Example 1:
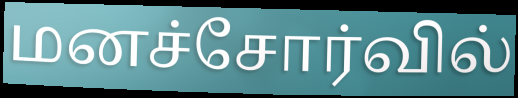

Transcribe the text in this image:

மனச்சோர்வில்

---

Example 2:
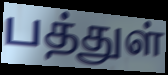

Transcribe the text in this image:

பத்துள்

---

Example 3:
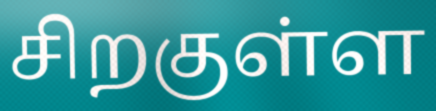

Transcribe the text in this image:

சிறகுள்ள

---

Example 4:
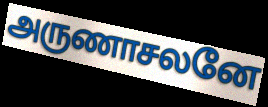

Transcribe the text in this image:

அருணாசலனே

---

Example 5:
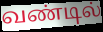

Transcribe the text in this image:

வண்டில்